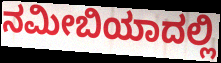
ನಮೀಬಿಯಾದಲ್ಲಿ